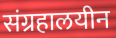
संग्रहालयीन